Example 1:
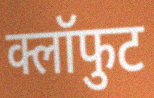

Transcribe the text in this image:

क्लॉफुट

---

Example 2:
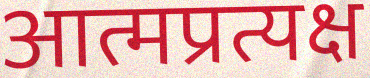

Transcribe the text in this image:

आत्मप्रत्यक्ष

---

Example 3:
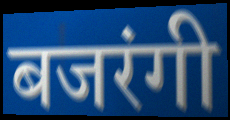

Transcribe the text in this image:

बजरंगी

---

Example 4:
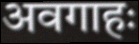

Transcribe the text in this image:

अवगाहः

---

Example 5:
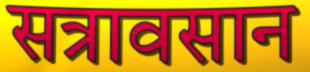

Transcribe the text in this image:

सत्रावसान